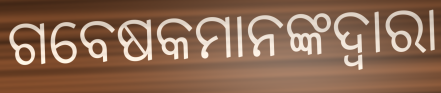
ଗବେଷକମାନଙ୍କଦ୍ୱାରା